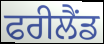
ਫਰੀਲੈਂਡ